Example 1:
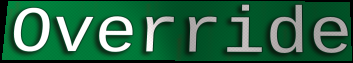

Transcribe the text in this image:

Override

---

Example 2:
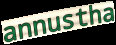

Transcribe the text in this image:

annustha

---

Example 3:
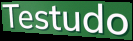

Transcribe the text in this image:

Testudo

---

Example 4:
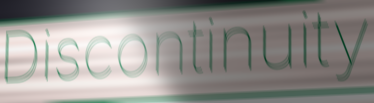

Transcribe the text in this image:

Discontinuity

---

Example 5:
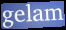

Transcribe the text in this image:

gelam